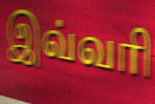
இவ்வரி